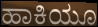
ಹಾಕಿಯೂ